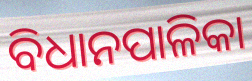
ବିଧାନପାଳିକା